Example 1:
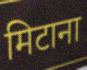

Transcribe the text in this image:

मिटाना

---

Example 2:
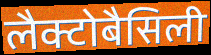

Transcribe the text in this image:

लैक्टोबैसिली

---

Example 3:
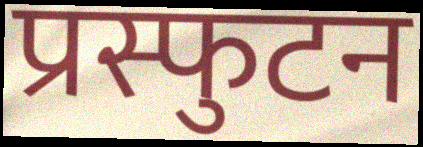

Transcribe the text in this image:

प्रस्‍फुटन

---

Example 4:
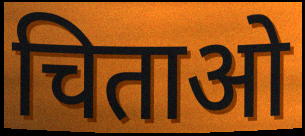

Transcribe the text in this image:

चिताओ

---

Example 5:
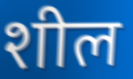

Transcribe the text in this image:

शील